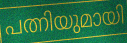
പത്നിയുമായി